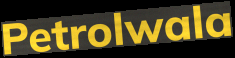
Petrolwala